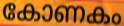
കോണകം